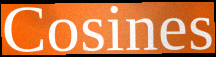
Cosines